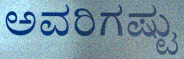
ಅವರಿಗಷ್ಟು